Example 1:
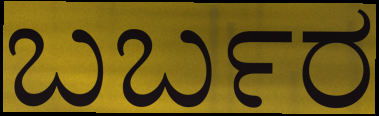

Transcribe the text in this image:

ಬರ್ಬರ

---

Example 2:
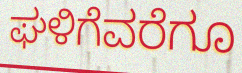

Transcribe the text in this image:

ಘಳಿಗೆವರೆಗೂ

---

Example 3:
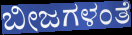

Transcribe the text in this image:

ಬೀಜಗಳಂತೆ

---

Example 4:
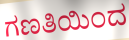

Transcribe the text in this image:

ಗಣತಿಯಿಂದ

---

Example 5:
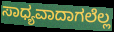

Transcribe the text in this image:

ಸಾಧ್ಯವಾದಾಗಲೆಲ್ಲ